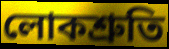
লোকশ্ৰুতি